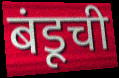
बंडूची